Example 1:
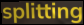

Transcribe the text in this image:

splitting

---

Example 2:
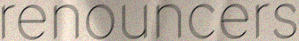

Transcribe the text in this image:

renouncers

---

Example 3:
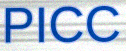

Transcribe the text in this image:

PICC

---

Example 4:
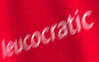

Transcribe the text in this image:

leucocratic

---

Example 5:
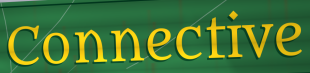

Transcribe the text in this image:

Connective